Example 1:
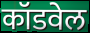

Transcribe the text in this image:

कॉडवेल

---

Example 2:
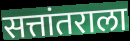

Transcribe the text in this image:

सत्तांतराला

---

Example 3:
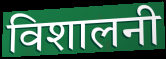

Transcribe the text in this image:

विशालनी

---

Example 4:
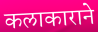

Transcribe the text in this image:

कलाकाराने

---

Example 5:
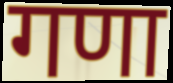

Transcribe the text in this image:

गणा